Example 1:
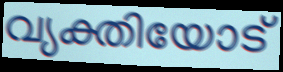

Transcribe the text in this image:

വ്യക്തിയോട്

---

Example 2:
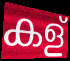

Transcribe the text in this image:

കള്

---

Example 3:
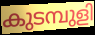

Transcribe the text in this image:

കുടമ്പുളി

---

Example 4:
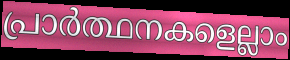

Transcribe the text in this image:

പ്രാർത്ഥനകളെല്ലാം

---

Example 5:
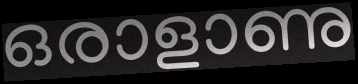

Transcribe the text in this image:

ഒരാളാണു